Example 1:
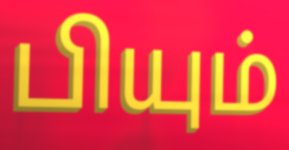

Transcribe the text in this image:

பியும்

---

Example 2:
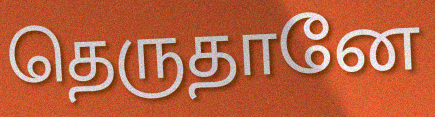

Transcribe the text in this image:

தெருதானே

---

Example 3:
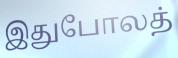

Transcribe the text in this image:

இதுபோலத்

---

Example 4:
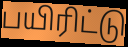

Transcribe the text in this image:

பயிரிட்டு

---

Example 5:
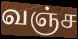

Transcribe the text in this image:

வஞ்ச